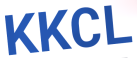
KKCL